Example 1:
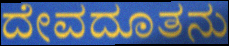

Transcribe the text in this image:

ದೇವದೂತನು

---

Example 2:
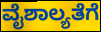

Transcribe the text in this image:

ವೈಶಾಲ್ಯತೆಗೆ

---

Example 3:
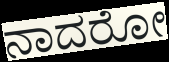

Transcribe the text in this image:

ನಾದರೋ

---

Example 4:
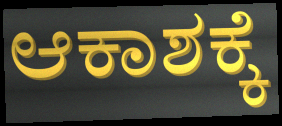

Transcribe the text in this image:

ಆಕಾಶಕ್ಕೆ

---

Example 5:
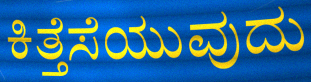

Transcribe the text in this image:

ಕಿತ್ತೆಸೆಯುವುದು